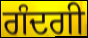
ਗੰਦਗੀ